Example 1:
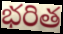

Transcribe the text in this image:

భరిత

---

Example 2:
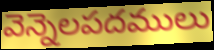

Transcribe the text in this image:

వెన్నెలపదములు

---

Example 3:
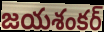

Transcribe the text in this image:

జయశంకర్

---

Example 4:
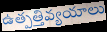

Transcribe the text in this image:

ఉత్పత్తివ్యయాలు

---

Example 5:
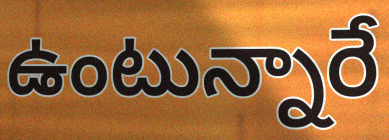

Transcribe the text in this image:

ఉంటున్నారే